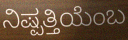
ನಿಷ್ಪತ್ತಿಯೆಂಬ